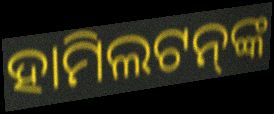
ହାମିଲଟନ୍‍ଙ୍କ